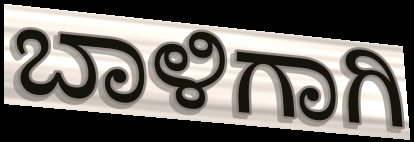
ಬಾಳಿಗಾಗಿ